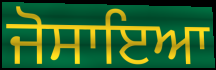
ਜੋਸਾਇਆ